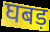
घबड़